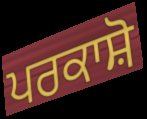
ਪਰਕਾਸ਼ੋ